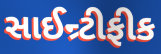
સાઈન્ર્ટીફીક